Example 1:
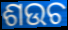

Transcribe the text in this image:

ଶଉଚ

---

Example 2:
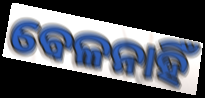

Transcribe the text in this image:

ବେଳନାହିଁ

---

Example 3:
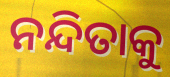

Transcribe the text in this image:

ନନ୍ଦିତାକୁ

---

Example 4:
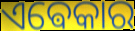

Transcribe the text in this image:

ଏଵେକାର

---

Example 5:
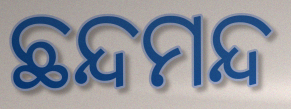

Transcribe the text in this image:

ଛନ୍ଦମନ୍ଦ